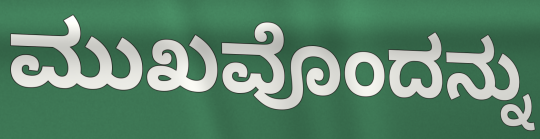
ಮುಖವೊಂದನ್ನು